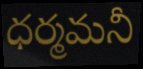
ధర్మమనీ